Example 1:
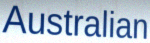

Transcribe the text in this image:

Australian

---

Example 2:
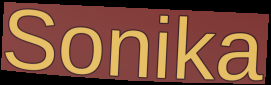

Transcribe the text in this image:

Sonika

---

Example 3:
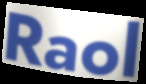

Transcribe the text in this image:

Raol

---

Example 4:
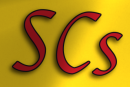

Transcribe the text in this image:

SCs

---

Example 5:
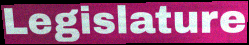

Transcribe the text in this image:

Legislature